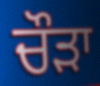
ਚੌੜਾ